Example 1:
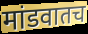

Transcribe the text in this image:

मांडवातच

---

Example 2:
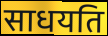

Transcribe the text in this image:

साधयति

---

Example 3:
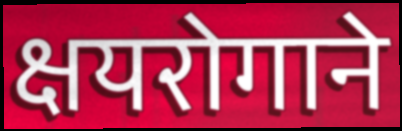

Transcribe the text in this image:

क्षयरोगाने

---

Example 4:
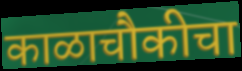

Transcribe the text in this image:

काळाचौकीचा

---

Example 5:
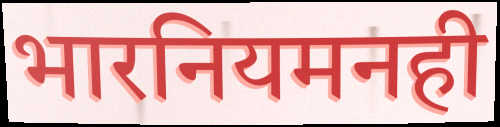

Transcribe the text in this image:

भारनियमनही